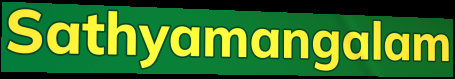
Sathyamangalam